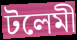
টলেমী